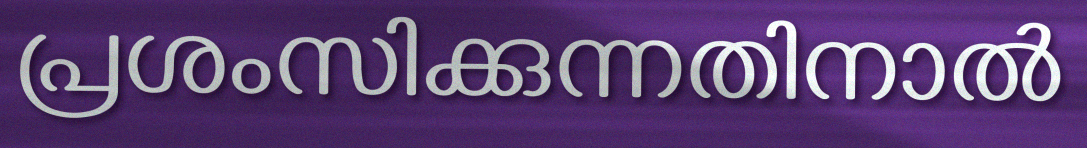
പ്രശംസിക്കുന്നതിനാൽ